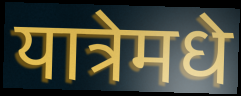
यात्रेमधे